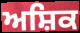
ਅਸ਼ਿਕ